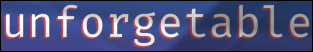
unforgetable